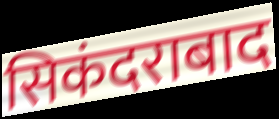
सिकंदराबाद